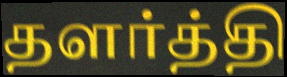
தளர்த்தி